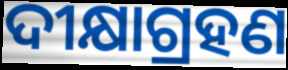
ଦୀକ୍ଷାଗ୍ରହଣ